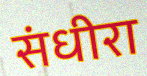
संधीरा